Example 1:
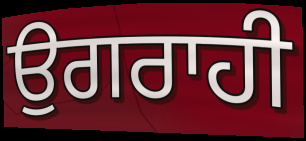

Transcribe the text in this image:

ਉਗਰਾਹੀ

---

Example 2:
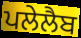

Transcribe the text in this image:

ਪਲੇਲੈਬ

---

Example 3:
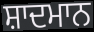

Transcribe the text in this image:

ਸ਼ਾਦਮਾਨ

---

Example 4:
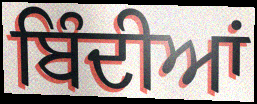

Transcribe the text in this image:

ਬਿੰਦੀਆਂ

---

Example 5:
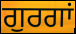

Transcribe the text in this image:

ਗੁਰਗਾਂ